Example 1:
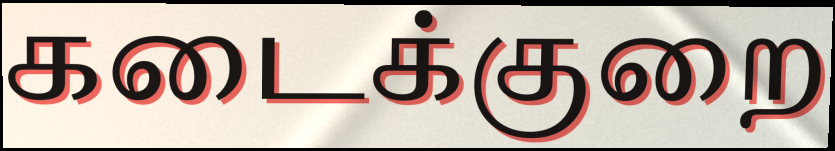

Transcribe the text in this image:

கடைக்குறை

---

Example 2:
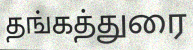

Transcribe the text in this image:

தங்கத்துரை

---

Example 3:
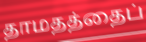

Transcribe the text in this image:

தாமதத்தைப்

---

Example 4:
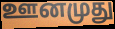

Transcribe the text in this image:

ஊனமுது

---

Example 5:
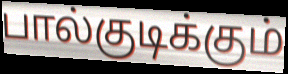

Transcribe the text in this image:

பால்குடிக்கும்